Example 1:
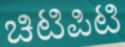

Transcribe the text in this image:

ಚಿಟಿಪಿಟಿ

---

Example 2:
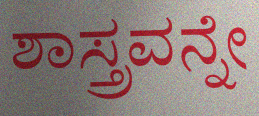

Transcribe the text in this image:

ಶಾಸ್ತ್ರವನ್ನೇ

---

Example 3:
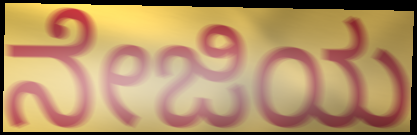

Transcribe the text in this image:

ನೇಜಿಯ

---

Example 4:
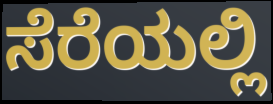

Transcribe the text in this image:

ಸೆರೆಯಲ್ಲಿ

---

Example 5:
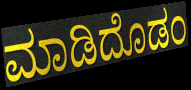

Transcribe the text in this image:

ಮಾಡಿದೊಡಂ